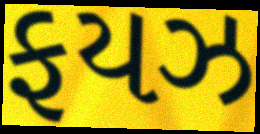
ફયઝ